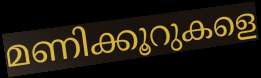
മണിക്കൂറുകളെ